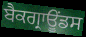
ਬੈਕਗ੍ਰਾਊਂਡਸ